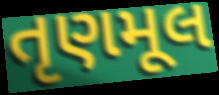
તૃણમૂલ